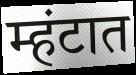
म्हंटात